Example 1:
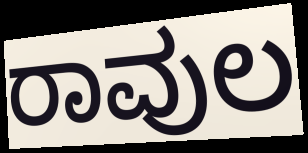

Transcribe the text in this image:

ರಾವುಲ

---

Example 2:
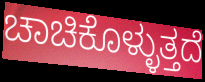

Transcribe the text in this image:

ಚಾಚಿಕೊಳ್ಳುತ್ತದೆ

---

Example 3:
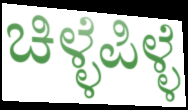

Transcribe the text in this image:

ಚಿಳ್ಳೆಪಿಳ್ಳೆ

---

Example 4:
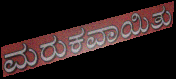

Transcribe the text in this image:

ಮರುಕವಾಯಿತು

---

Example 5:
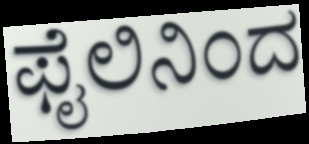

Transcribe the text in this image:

ಫೈಲಿನಿಂದ